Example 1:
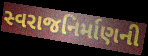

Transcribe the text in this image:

સ્વરાજનિર્માણની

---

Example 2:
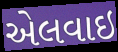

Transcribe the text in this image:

એલવાઇ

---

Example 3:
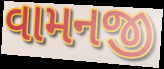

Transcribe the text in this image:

વામનજી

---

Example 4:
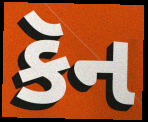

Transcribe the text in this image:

કૅન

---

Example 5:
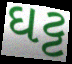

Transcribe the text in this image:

ઘટ્ટ